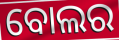
ବୋଲର